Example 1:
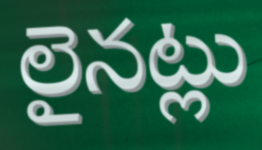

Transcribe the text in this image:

లైనట్లు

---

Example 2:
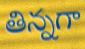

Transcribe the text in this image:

తిన్నగా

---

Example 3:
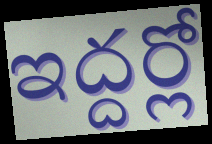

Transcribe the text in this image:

ఇద్దర్లో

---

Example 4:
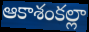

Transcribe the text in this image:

ఆకాశంకల్లా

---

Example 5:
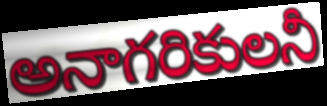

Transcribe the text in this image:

అనాగరికులనీ